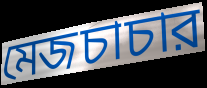
মেজচাচার